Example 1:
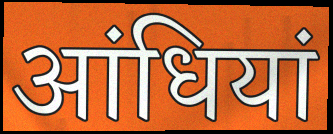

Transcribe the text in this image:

आंधियां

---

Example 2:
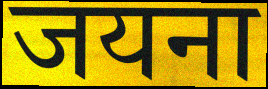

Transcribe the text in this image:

जयना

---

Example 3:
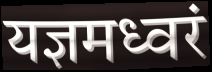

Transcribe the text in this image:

यज्ञमध्वरं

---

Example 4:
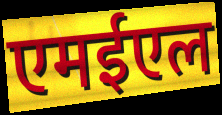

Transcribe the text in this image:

एमईएल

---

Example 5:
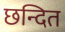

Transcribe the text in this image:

छन्दित